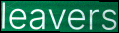
leavers